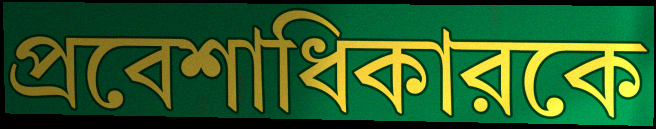
প্রবেশাধিকারকে